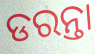
ଡରନ୍ତା